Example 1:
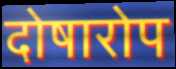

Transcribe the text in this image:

दोषारोप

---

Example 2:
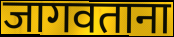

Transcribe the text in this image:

जागवताना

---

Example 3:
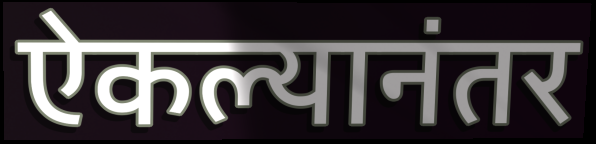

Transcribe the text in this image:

ऐकल्यानंतर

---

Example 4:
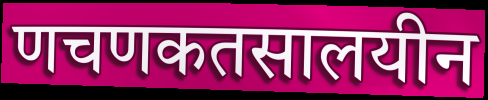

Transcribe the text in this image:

णचणकतसालयीन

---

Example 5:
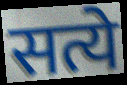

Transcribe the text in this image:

सत्ये